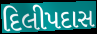
દિલીપદાસ